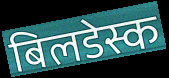
बिलडेस्क